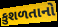
કુશળતાનો